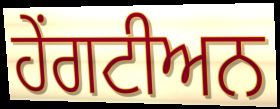
ਹੇਂਗਟੀਅਨ